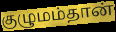
குழுமம்தான்